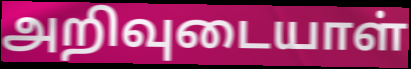
அறிவுடையாள்